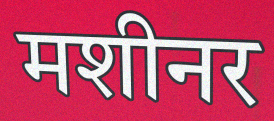
मशीनर